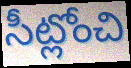
సీట్లోంచి